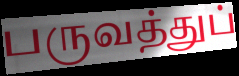
பருவத்துப்